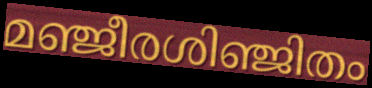
മഞ്ജീരശിഞ്ജിതം